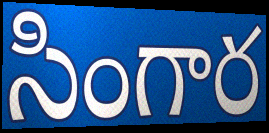
సింగార